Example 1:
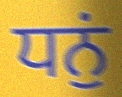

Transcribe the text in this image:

ਧਨੁਂ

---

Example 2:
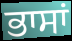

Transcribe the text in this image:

ਭਾਸਾਂ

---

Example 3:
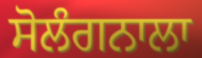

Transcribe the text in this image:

ਸੋਲੰਗਨਾਲਾ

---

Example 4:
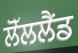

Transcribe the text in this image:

ਲੋੱਲਲੈਂਡ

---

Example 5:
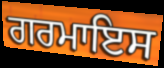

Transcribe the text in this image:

ਗਰਮਾਇਸ